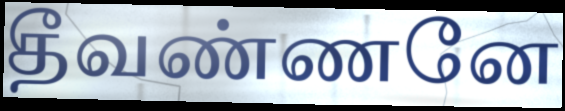
தீவண்ணனே